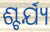
ଶ୍ଚର୍ଯ୍ୟ